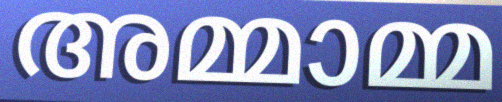
അമ്മാമ്മ